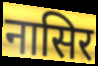
नासिर